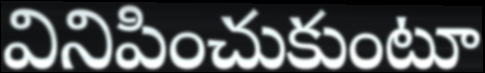
వినిపించుకుంటూ